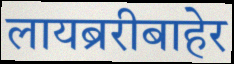
लायब्ररीबाहेर